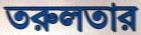
তরুলতার